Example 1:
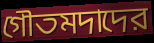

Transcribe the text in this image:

গৌতমদাদের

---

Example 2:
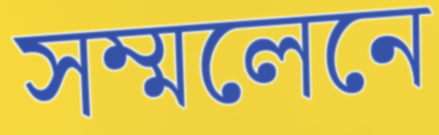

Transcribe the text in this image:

সম্মলেনে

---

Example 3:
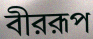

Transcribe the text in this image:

বীররূপ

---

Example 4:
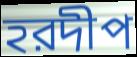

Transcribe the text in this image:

হরদীপ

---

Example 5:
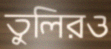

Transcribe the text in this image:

তুলিরও